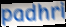
padhri